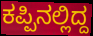
ಕಪ್ಪಿನಲ್ಲಿದ್ದ